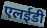
एलईडी